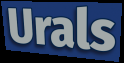
Urals